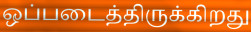
ஒப்படைத்திருக்கிறது